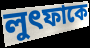
লুৎফাকে